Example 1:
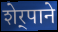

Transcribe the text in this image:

शेर्पाने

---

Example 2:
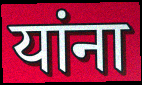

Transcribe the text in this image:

यांना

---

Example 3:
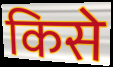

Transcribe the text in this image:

किसे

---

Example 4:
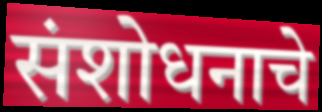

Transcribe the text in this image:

संशोधनाचे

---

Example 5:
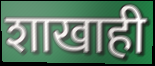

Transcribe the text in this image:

शाखाही